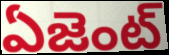
ఏజెంట్